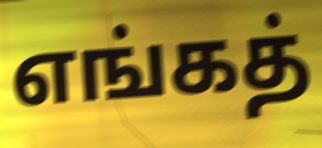
எங்கத்